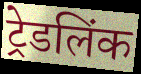
ट्रेडलिंक